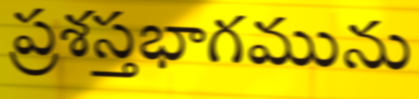
ప్రశస్తభాగమును